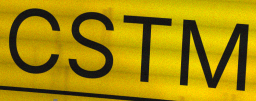
CSTM